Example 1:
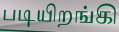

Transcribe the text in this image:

படியிறங்கி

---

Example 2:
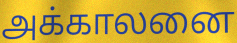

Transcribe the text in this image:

அக்காலனை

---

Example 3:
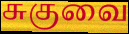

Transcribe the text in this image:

சுகுவை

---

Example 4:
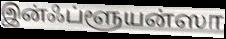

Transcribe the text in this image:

இன்ஃப்ளூயன்ஸா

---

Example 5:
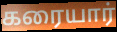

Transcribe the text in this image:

கரையார்